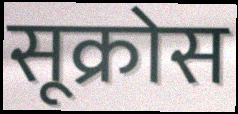
सूक्रोस